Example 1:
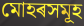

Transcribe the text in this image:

মোহৰসমূহ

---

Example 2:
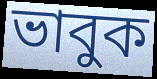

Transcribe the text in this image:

ভাবুক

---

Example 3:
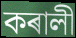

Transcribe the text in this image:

কৰালী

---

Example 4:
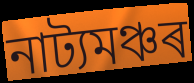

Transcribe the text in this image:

নাট্যমঞ্চৰ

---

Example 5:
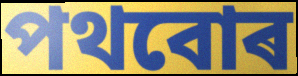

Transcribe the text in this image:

পথবোৰ